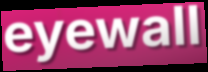
eyewall